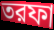
তরফা